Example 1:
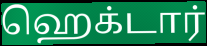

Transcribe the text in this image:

ஹெக்டார்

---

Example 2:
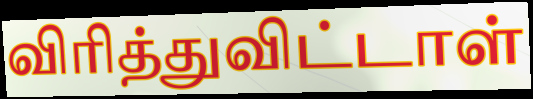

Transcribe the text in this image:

விரித்துவிட்டாள்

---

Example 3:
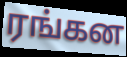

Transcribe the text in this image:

ரங்கன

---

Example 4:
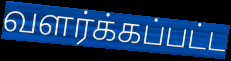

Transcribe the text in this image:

வளர்க்கப்பட்ட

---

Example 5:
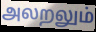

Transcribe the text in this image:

அலறலும்